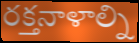
రక్తనాళాల్ని